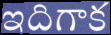
ఇదిగాక